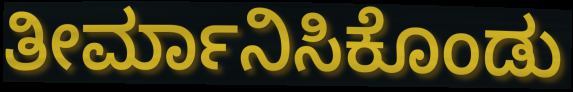
ತೀರ್ಮಾನಿಸಿಕೊಂಡು